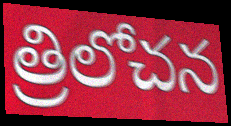
త్రిలోచన